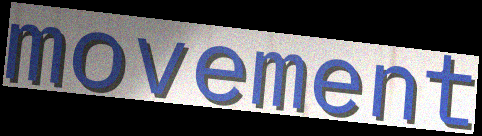
movement